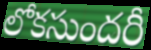
లోకసుందరీ